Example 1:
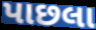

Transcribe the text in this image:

પાછલા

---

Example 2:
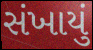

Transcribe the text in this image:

સંખાયું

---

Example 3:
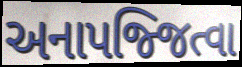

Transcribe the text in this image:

અનાપજ્જિત્વા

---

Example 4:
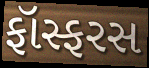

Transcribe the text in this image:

ફૉસ્ફરસ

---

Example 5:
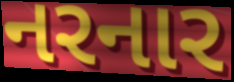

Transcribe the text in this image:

નરનાર